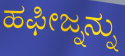
ಹಫೀಜ್ನನ್ನು